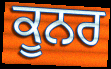
ਕੂਨਰ